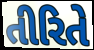
તીરિતે